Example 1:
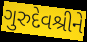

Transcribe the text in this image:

ગુરુદેવશ્રીને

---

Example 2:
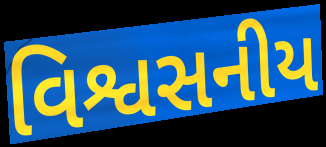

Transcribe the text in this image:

વિશ્વસનીય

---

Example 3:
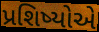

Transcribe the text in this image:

પ્રશિષ્યોએ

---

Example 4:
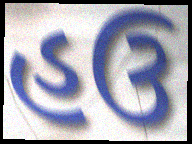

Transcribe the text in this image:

હઉ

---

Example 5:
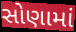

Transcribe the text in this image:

સોણામાં